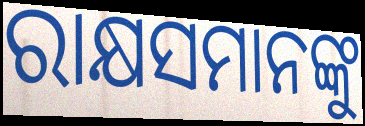
ରାକ୍ଷସମାନଙ୍କୁ